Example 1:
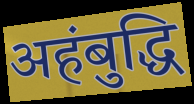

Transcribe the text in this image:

अहंबुद्धि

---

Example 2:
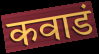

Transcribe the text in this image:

कवाडं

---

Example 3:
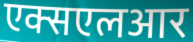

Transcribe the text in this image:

एक्सएलआर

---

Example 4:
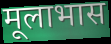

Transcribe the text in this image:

मूलाभास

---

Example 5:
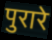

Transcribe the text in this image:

पुरारे